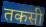
तकसी